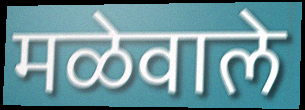
मळेवाले